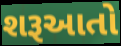
શરૂઆતો